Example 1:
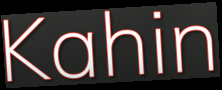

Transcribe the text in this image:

Kahin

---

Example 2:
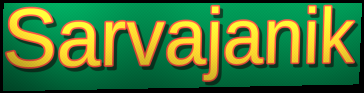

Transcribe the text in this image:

Sarvajanik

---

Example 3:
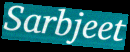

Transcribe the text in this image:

Sarbjeet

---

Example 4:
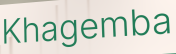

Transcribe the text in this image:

Khagemba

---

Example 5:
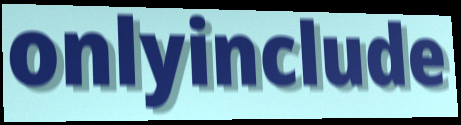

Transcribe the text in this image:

onlyinclude